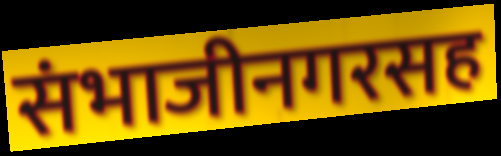
संभाजीनगरसह